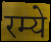
रम्ये